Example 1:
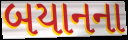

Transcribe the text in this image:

બયાનના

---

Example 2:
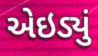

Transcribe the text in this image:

એઇડ્યું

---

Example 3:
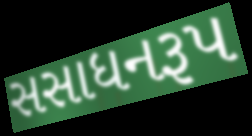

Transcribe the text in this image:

સસાધનરૂપ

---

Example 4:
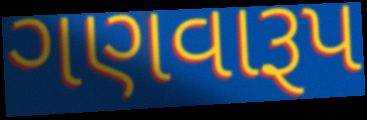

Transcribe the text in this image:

ગણવારૂપ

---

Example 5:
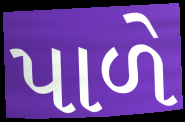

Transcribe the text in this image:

પાળે